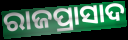
ରାଜପ୍ରାସାଦ